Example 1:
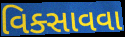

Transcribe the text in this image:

વિક્સાવવા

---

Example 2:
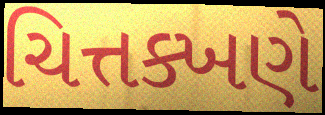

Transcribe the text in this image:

ચિત્તક્ખણે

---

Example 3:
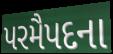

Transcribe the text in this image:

પરમૈપદના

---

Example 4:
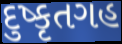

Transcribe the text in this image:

દુષ્કૃતગહ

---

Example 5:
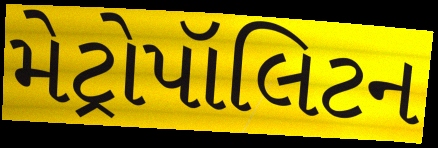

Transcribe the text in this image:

મેટ્રોપૉલિટન